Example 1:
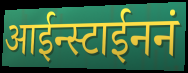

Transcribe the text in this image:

आईन्स्टाईननं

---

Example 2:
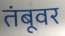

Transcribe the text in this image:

तंबूवर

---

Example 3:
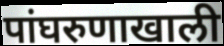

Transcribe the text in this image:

पांघरुणाखाली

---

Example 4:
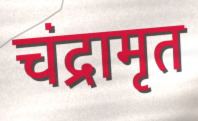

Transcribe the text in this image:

चंद्रामृत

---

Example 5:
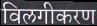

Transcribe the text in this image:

विलगीकरण